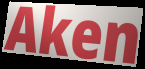
Aken